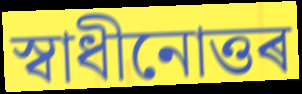
স্বাধীনোত্তৰ